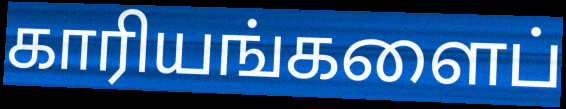
காரியங்களைப்